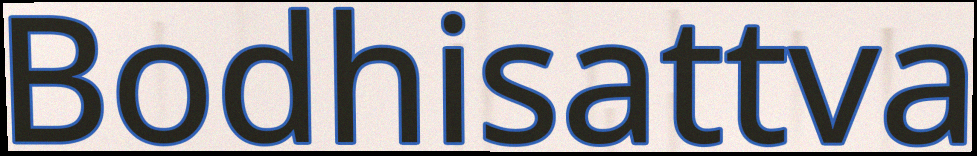
Bodhisattva